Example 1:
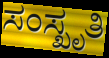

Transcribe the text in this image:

ಸಂಸ್ಖೃತಿ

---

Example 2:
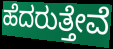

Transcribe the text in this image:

ಹೆದರುತ್ತೇವೆ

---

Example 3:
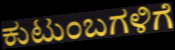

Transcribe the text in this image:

ಕುಟುಂಬಗಳಿಗೆ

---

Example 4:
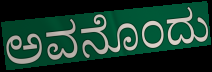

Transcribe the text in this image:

ಅವನೊಂದು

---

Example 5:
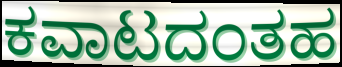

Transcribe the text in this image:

ಕವಾಟದಂತಹ